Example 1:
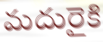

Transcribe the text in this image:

మదురైకి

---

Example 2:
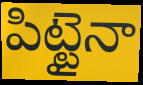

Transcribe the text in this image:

పిట్టైనా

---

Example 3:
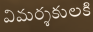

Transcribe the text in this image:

విమర్శకులకి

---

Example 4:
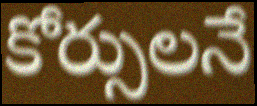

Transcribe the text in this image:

కోర్సులనే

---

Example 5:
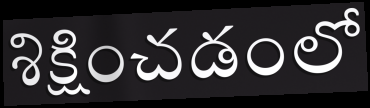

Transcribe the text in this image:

శిక్షించడంలో